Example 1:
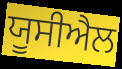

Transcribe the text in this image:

ਯੂਸੀਐਲ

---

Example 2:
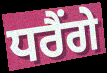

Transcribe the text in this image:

ਧਰੈਂਗੇ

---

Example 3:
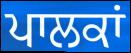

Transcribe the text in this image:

ਪਾਲਕਾਂ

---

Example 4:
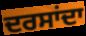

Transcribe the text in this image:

ਦਰਸਾਂਦਾ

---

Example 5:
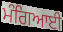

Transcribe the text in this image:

ਮੰਗਿਆਈ